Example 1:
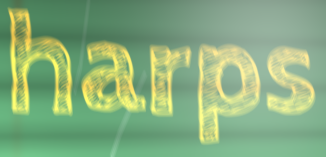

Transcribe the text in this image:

harps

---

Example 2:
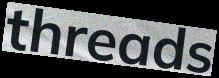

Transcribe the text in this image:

threads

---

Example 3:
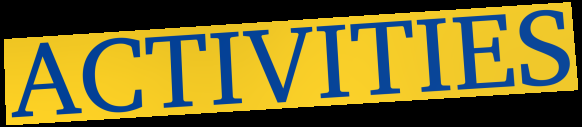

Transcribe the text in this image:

ACTIVITIES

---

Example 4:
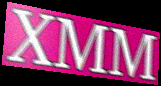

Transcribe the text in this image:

XMM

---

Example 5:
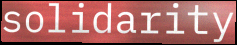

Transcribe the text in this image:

solidarity